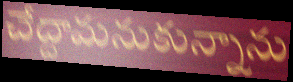
చేద్దామనుకున్నాను